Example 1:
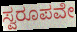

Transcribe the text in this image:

ಸ್ವರೂಪವೇ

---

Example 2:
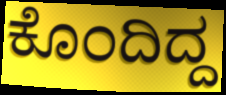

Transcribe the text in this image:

ಕೊಂದಿದ್ದ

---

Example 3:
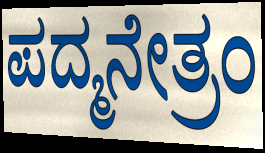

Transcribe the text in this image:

ಪದ್ಮನೇತ್ರಂ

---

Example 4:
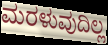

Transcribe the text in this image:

ಮರಳುವುದಿಲ್ಲ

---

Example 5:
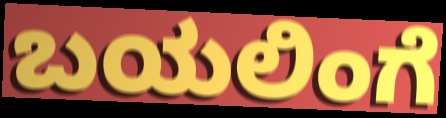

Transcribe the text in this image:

ಬಯಲಿಂಗೆ